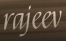
rajeev